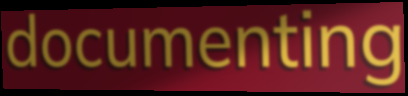
documenting